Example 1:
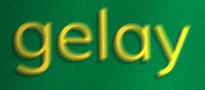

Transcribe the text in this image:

gelay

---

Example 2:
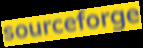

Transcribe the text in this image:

sourceforge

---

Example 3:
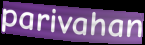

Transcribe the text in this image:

parivahan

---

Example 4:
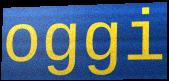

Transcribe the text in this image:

oggi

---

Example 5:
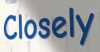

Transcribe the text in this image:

Closely